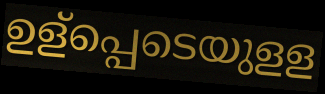
ഉള്പ്പെടെയുളള